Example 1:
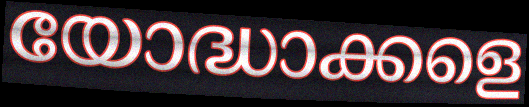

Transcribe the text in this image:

യോദ്ധാക്കളെ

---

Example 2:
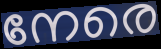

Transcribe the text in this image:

നേരെ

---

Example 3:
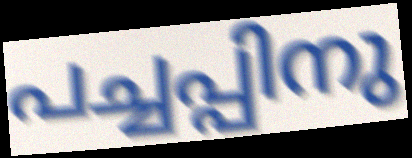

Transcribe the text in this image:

പച്ചപ്പിനു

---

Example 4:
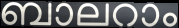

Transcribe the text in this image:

ബാലറാം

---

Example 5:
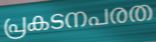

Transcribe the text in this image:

പ്രകടനപരത